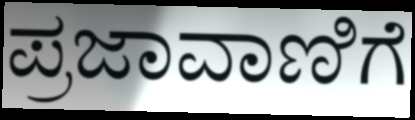
ಪ್ರಜಾವಾಣಿಗೆ